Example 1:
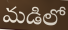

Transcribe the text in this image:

మడిలో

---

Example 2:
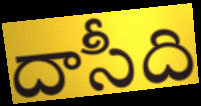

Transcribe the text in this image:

దాసీది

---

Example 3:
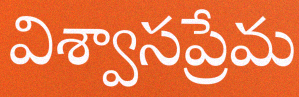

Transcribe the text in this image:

విశ్వాసప్రేమ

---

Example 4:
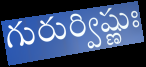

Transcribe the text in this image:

గురుర్విష్ణుః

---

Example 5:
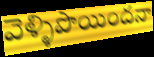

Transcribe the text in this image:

వెళ్ళిపొయిందనా